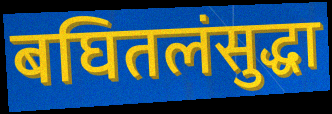
बघितलंसुद्धा